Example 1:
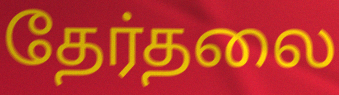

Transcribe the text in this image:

தேர்தலை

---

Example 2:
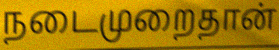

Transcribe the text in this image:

நடைமுறைதான்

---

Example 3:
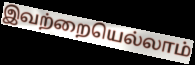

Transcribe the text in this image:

இவற்றையெல்லாம்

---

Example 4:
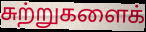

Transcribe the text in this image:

சுற்றுகளைக்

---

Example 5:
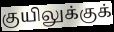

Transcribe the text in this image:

குயிலுக்குக்